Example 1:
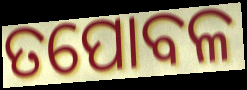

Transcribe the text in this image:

ତପୋବଳ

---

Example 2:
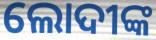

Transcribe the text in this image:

ଲୋଦୀଙ୍କ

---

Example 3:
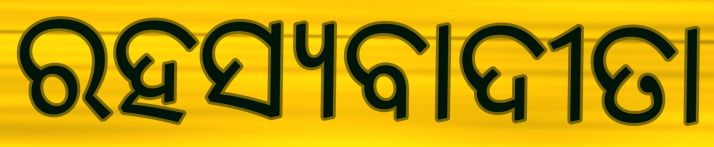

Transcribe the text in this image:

ରହସ୍ୟବାଦୀତା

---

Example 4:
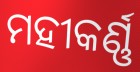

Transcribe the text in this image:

ମହୀକର୍ଣ୍ଣ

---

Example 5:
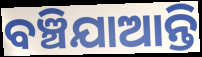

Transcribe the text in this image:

ବଞ୍ଚିଯାଆନ୍ତି